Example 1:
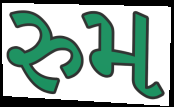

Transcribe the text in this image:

રુમ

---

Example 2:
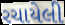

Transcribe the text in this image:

રચાયેલી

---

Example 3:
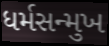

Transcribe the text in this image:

ધર્મસન્મુખ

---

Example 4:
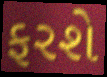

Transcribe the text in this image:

ફરશે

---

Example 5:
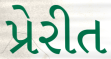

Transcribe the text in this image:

પ્રેરીત